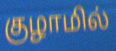
குழாமில்